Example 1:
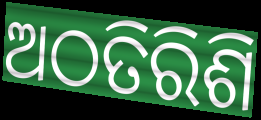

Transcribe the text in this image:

ଅଠତିରିଶି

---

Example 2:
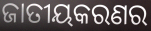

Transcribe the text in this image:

ଜାତୀୟକରଣର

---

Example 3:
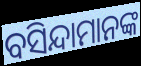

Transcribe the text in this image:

ବସିନ୍ଦାମାନଙ୍କ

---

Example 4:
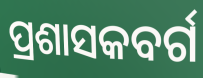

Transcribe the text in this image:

ପ୍ରଶାସକବର୍ଗ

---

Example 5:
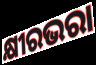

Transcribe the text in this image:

କ୍ଷୀରଭରା